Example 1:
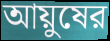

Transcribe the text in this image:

আয়ুষের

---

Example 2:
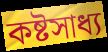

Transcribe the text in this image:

কষ্টসাধ্য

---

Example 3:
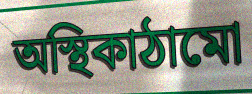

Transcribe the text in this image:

অস্থিকাঠামো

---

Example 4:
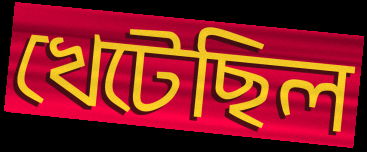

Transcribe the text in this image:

খেটেছিল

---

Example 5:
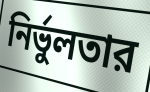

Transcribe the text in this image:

নির্ভুলতার